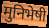
मुनिभेषी